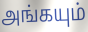
அங்கயும்